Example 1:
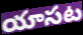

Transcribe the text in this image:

యాసట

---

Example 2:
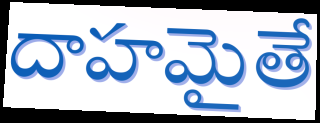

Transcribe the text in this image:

దాహమైతే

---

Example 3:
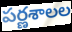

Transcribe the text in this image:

పర్ణశాలల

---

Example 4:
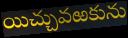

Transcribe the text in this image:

యిచ్చువఱకును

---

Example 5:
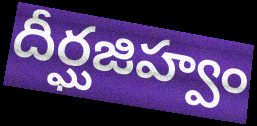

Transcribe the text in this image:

దీర్ఘజిహ్వం